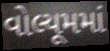
વોલ્યૂમમાં